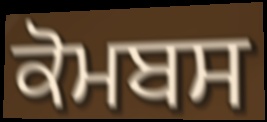
ਕੋਮਬਸ